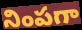
నింపగా